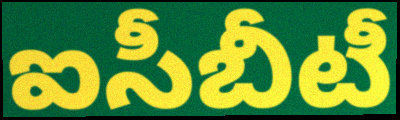
ఐసీబీటీ